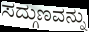
ಸದ್ಗುಣವನ್ನು